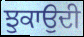
ਝੁਕਾਉਦੀ